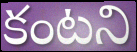
కంటని